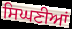
ਸਿਘਣੀਆਂ